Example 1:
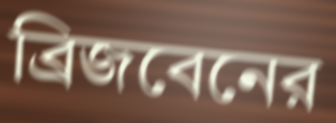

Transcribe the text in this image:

ব্রিজবেনের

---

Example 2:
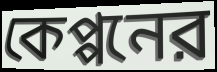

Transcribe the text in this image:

কেপ্পনের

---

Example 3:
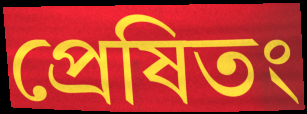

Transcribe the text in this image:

প্রেষিতং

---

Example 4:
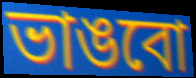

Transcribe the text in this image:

ভাঙবো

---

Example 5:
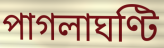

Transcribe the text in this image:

পাগলাঘণ্টি